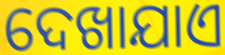
ଦେଖାଯାଏ